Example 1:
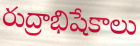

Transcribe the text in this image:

రుద్రాభిషేకాలు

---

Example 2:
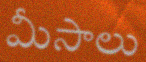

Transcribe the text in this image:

మీసాలు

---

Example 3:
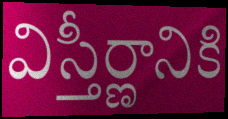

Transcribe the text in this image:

విస్తీర్ణానికి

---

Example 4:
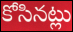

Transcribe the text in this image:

కోసినట్లు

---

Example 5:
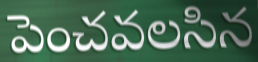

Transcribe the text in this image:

పెంచవలసిన